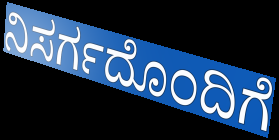
ನಿಸರ್ಗದೊಂದಿಗೆ